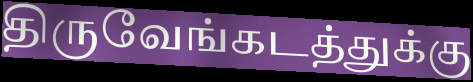
திருவேங்கடத்துக்கு